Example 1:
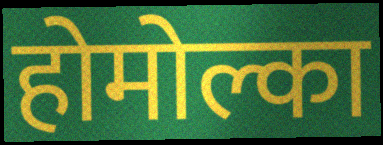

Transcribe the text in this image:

होमोल्का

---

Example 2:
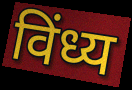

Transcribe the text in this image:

विंध्य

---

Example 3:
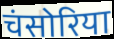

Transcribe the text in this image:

चंसोरिया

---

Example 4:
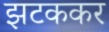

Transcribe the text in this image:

झटककर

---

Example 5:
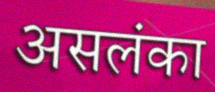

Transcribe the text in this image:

असलंका